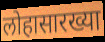
लोहासारख्या